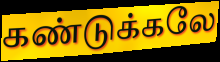
கண்டுக்கலே